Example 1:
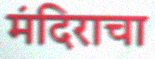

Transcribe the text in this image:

मंदिराचा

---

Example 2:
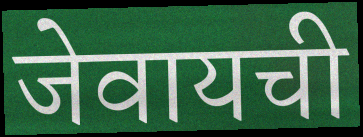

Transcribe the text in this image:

जेवायची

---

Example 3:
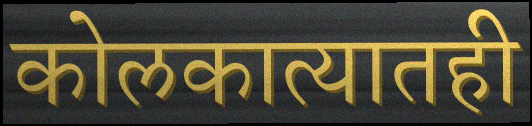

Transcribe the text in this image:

कोलकात्यातही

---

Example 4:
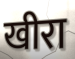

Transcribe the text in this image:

खीरा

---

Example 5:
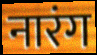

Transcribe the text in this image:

नारंग